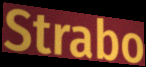
Strabo